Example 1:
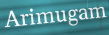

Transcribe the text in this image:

Arimugam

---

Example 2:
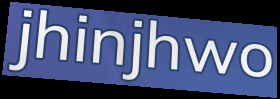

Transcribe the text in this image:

jhinjhwo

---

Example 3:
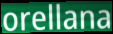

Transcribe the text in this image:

orellana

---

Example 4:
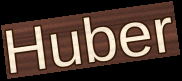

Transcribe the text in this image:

Huber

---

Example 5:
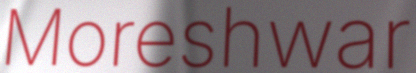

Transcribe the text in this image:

Moreshwar